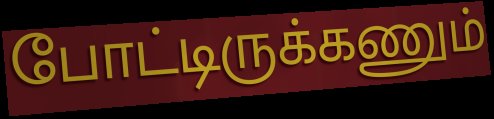
போட்டிருக்கணும்